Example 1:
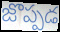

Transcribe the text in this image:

జొప్పడ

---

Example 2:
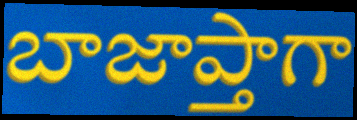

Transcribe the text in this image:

బాజాప్తాగా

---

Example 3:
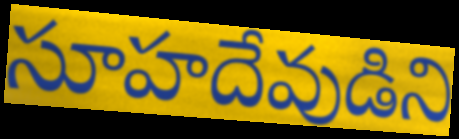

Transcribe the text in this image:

సూహదేవుడిని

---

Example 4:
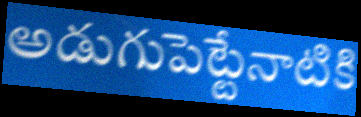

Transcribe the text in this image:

అడుగుపెట్టేనాటికి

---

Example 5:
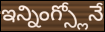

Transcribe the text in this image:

ఇన్నింగ్స్లోనే